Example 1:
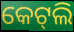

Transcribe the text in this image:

କେଟ୍‌ଲି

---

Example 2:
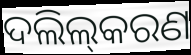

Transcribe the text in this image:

ଦଲିଲ୍‌କରଣ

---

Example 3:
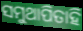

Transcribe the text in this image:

ସମୁଥାପିତାହି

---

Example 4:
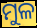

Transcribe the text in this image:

ମୁଳ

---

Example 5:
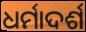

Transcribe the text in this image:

ଧର୍ମାଦର୍ଶ